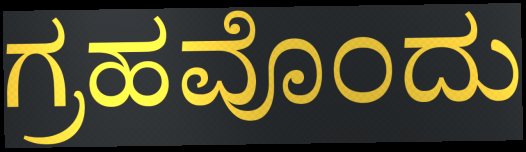
ಗ್ರಹವೊಂದು